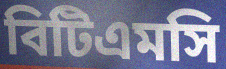
বিটিএমসি